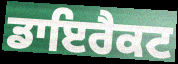
ਡਾਇਰੈਕਟ